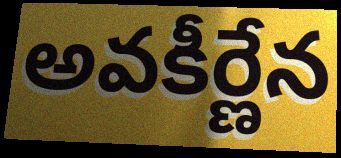
అవకీర్ణేన